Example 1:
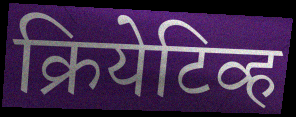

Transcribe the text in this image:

क्रियेटिव्ह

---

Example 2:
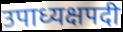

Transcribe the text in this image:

उपाध्यक्षपदी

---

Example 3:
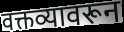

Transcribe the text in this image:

वक्तव्यावरून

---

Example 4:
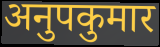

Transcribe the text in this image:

अनुपकुमार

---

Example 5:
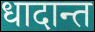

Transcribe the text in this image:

धादान्त